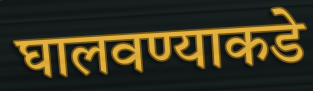
घालवण्याकडे